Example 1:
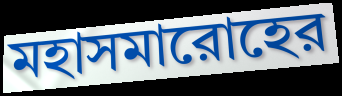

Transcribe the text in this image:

মহাসমারোহের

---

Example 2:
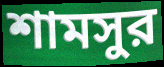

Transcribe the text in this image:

শামসুর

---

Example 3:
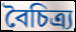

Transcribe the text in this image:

বৈচিত্র্য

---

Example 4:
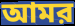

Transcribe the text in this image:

আমর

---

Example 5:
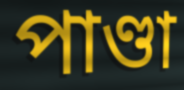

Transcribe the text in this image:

পাণ্ডা